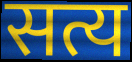
सत्य